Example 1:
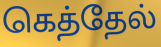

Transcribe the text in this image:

கெத்தேல்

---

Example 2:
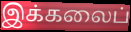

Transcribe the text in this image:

இக்கலைப்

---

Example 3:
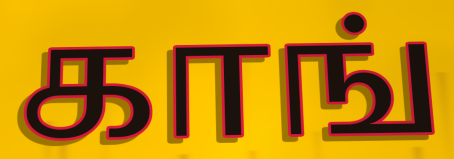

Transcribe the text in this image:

காங்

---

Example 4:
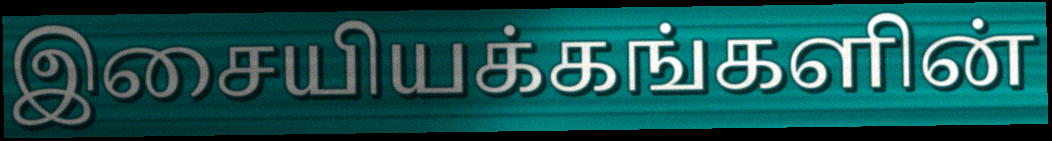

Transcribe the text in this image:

இசையியக்கங்களின்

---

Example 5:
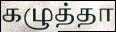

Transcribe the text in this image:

கழுத்தா